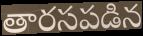
తారసపడిన